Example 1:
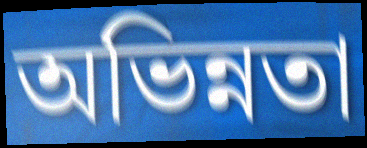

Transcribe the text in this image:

অভিন্নতা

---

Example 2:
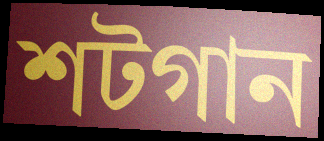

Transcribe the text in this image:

শটগান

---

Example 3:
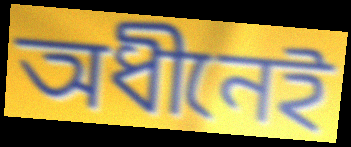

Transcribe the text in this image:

অধীনেই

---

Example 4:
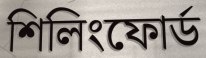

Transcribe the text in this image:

শিলিংফোর্ড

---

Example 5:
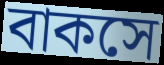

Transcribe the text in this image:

বাকসে